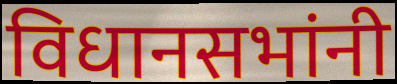
विधानसभांनी